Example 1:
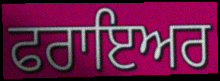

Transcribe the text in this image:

ਫਰਾਇਅਰ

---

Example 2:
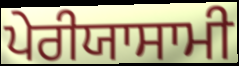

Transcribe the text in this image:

ਪੇਰੀਯਾਸਾਮੀ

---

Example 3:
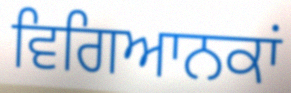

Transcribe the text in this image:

ਵਿਗਿਆਨਕਾਂ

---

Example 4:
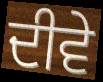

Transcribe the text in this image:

ਦੀਵੇ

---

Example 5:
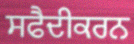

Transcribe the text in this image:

ਸਫੈਦੀਕਰਨ